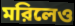
মরিলেও